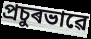
প্ৰচুৰভাৱে